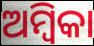
ଅମ୍ବିକା